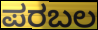
ಪರಬಲ